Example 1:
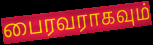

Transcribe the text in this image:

பைரவராகவும்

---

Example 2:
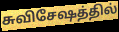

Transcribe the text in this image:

சுவிசேஷத்தில்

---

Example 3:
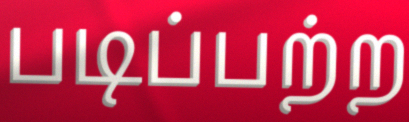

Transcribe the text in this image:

படிப்பற்ற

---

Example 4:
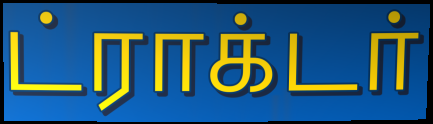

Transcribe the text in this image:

ட்ராக்டர்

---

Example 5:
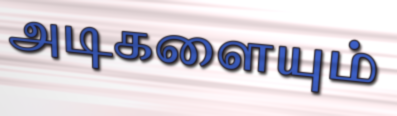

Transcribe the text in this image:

அடிகளையும்